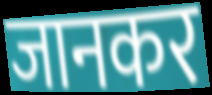
जानकर